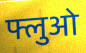
फ्लुओ